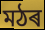
মঠৰ